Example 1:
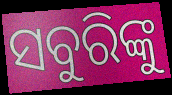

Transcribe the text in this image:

ସବୁରିଙ୍କୁ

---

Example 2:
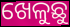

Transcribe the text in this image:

ଖେଳୁଛୁ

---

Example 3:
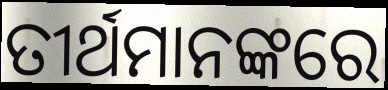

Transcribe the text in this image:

ତୀର୍ଥମାନଙ୍କରେ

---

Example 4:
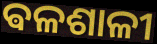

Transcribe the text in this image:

ଵଳଶାଳୀ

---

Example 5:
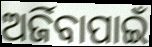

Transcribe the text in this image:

ଅର୍ଜିବାପାଇଁ